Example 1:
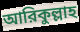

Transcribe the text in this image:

আরিকুল্লাহ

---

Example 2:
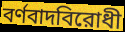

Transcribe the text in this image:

বর্ণবাদবিরোধী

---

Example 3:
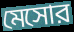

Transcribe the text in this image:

মেসোর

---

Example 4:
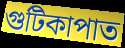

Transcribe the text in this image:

গুটিকাপাত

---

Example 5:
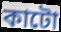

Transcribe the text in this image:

কাটো